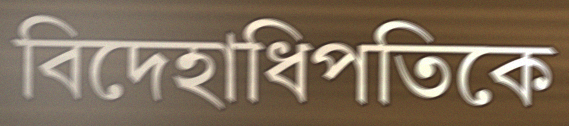
বিদেহাধিপতিকে